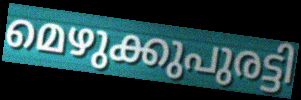
മെഴുക്കുപുരട്ടി